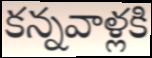
కన్నవాళ్లకి